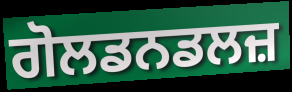
ਗੋਲਡਨਡਲਜ਼